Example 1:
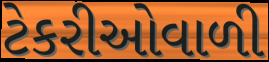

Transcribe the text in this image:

ટેકરીઓવાળી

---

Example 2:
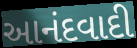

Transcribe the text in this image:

આનંદવાદી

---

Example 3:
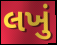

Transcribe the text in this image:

લખું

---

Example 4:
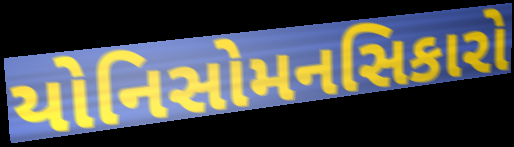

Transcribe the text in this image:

યોનિસોમનસિકારો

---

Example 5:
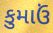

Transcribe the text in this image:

કુમાઉં